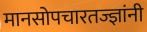
मानसोपचारतज्ज्ञांनी